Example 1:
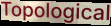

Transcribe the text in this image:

Topological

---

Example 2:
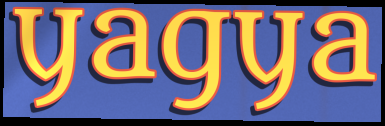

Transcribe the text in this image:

yagya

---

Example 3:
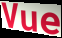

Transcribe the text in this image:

Vue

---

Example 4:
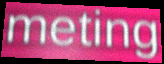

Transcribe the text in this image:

meting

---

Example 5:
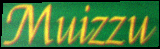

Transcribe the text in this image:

Muizzu